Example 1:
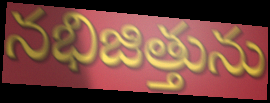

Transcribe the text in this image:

నభిజిత్తును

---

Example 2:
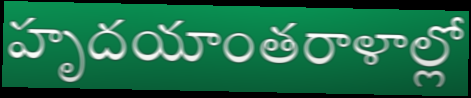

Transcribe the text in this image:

హృదయాంతరాళాల్లో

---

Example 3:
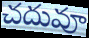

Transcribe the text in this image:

చదువూ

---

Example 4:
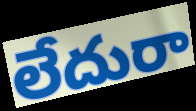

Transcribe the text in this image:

లేదురా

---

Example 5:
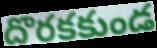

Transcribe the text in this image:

దొరకకుండ